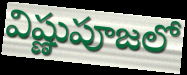
విష్ణుపూజలో